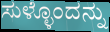
ಸುಳ್ಳೊಂದನ್ನು